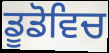
ਡੂਡੋਵਿਚ